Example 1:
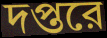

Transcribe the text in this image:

দপ্তরে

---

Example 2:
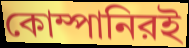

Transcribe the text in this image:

কোম্পানিরই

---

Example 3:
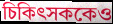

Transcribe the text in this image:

চিকিৎসককেও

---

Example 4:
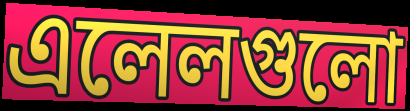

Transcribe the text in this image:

এলেলগুলো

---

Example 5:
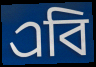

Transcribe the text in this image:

এবি